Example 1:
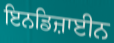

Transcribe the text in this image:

ਇਨਡਿਜ਼ਾਈਨ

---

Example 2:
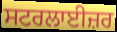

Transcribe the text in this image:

ਸਟਰਲਾਈਜ਼ਰ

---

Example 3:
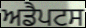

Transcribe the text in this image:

ਅਡੈਪਟਸ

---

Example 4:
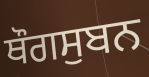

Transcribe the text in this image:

ਥੌਗਸੁਬਨ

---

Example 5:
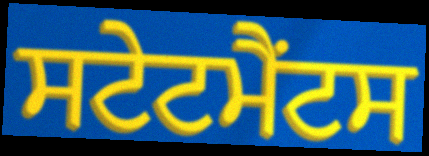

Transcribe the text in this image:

ਸਟੇਟਮੈਂਟਸ